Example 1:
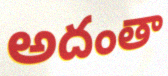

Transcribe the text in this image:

అదంతా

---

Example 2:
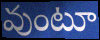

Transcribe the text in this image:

వుంటూ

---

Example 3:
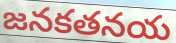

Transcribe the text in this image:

జనకతనయ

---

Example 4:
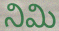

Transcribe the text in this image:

నిమి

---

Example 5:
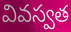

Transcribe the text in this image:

వివస్వత